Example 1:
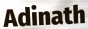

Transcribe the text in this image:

Adinath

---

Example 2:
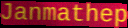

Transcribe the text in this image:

Janmathep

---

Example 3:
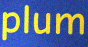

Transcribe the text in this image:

plum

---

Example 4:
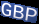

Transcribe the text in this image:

GBP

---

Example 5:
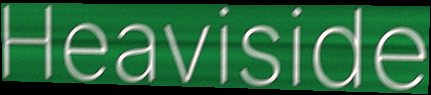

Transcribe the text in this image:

Heaviside